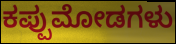
ಕಪ್ಪುಮೋಡಗಳು